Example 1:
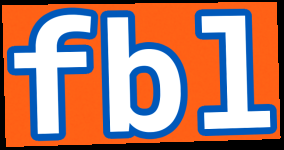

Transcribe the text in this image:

fbl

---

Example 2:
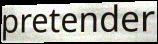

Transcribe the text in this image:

pretender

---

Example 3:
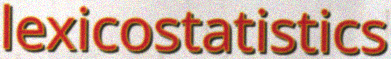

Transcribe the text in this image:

lexicostatistics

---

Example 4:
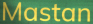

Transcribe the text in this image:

Mastan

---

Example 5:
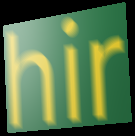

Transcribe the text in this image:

hir